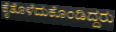
ಕೈತೊಳೆದುಕೊಂಡಿದ್ದರು